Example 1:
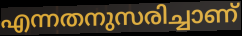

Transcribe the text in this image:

എന്നതനുസരിച്ചാണ്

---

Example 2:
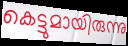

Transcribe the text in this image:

കെട്ടുമായിരുന്നു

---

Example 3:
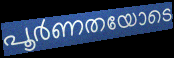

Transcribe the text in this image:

പൂർണതയോടെ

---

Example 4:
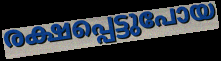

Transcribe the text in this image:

രക്ഷപ്പെട്ടുപോയ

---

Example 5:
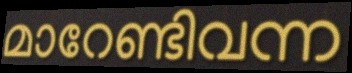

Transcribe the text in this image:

മാറേണ്ടിവന്ന